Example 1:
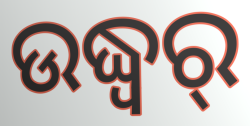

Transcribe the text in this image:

ଉଦ୍ଧ୍ୱର୍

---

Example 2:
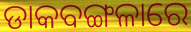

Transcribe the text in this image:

ଡାକବଙ୍ଗଳାରେ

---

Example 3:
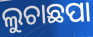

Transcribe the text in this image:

ଲୁଚାଛପା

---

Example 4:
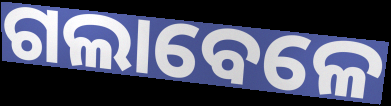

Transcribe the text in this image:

ଗଲାବେଳେ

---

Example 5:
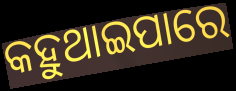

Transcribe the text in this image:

କହୁଥାଇପାରେ